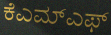
ಕೆಎಮ್ಎಫ್